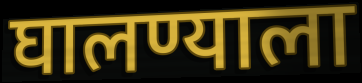
घालण्याला